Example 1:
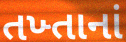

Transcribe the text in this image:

તખ્તાનાં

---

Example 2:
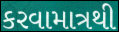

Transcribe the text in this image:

કરવામાત્રથી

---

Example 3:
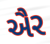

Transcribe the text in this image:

ઐર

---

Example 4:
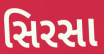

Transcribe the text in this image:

સિરસા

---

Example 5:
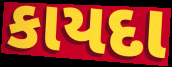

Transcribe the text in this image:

કાયદા